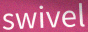
swivel